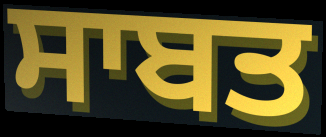
ਸਾਬਤ